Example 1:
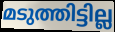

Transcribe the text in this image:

മടുത്തിട്ടില്ല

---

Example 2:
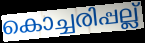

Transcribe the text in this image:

കൊച്ചരിപ്പല്ല്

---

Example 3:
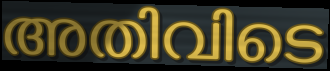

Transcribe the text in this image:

അതിവിടെ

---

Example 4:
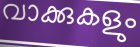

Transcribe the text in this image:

വാക്കുകളും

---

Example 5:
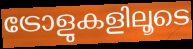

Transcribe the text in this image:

ട്രോളുകളിലൂടെ